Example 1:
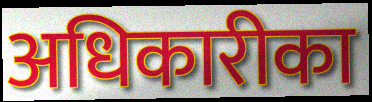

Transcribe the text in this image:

अधिकारीका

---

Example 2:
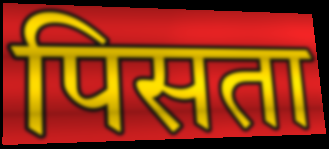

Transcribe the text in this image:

पिसता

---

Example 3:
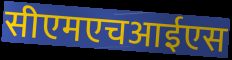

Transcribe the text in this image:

सीएमएचआईएस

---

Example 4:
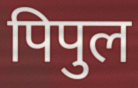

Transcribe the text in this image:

पिपुल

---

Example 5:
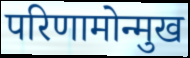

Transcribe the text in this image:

परिणामोन्मुख